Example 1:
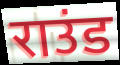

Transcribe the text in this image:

राउंड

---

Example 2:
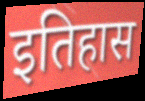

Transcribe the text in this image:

इतिहास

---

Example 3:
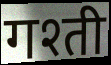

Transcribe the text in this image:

गश्ती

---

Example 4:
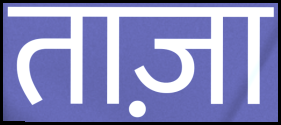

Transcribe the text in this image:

ताज़ा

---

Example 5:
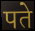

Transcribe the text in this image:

पते